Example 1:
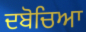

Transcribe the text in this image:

ਦਬੋਚਿਆ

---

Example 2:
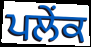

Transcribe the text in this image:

ਪਲੇਂਕ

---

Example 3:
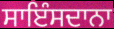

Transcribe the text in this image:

ਸਾਇੰਸਦਾਨਾ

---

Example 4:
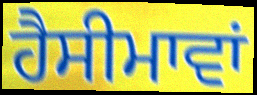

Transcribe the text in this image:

ਹੈਸੀਮਾਵਾਂ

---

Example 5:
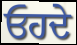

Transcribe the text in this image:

ਓਹਦੇ